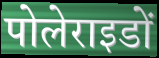
पोलेराइडों